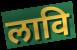
लावि